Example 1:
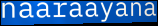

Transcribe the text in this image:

naaraayana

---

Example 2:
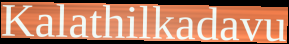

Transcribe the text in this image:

Kalathilkadavu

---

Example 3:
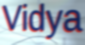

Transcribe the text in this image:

Vidya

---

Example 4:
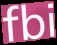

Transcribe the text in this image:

fbi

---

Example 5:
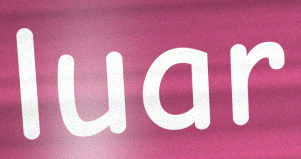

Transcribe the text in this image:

luar